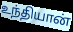
உந்தியான்